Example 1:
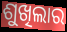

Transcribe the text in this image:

ଶୁଖିଲାର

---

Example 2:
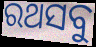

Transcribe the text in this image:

ରଥସବୁ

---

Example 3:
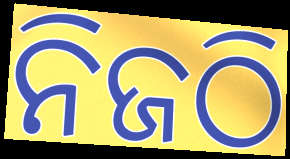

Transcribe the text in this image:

ନିଜଠି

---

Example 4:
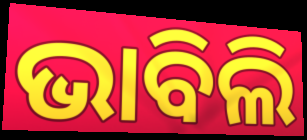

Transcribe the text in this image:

ଭାବିଲି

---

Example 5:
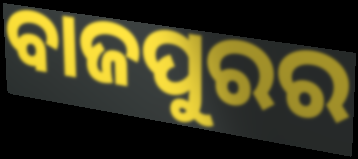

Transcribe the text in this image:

ବାଜପୁରର